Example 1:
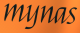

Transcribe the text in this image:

mynas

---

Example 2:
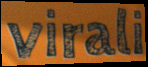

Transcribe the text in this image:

virali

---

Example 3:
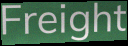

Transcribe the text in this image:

Freight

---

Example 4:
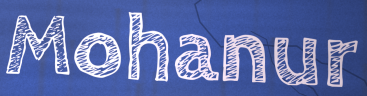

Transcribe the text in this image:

Mohanur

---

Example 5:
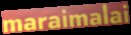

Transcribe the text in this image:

maraimalai